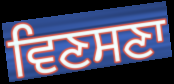
ਵਿਣਸਣਾ